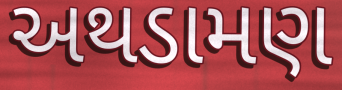
અથડામણ